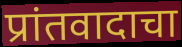
प्रांतवादाचा